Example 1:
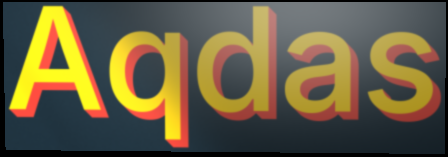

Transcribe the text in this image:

Aqdas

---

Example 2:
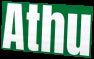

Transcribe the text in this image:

Athu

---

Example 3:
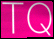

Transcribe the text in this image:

TQ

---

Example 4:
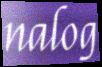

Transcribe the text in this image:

nalog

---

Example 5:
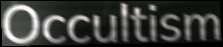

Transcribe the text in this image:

Occultism